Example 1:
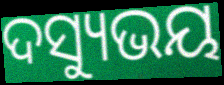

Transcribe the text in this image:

ଦସ୍ୟୁଭୟ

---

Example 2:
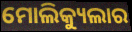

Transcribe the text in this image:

ମୋଲିକ୍ୟୁଲାର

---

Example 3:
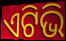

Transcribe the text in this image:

ଏଟିଭି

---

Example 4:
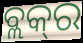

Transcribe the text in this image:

ବ୍ଲକ୍‍ର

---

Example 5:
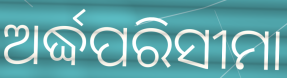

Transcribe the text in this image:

ଅର୍ଦ୍ଧପରିସୀମା